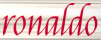
ronaldo